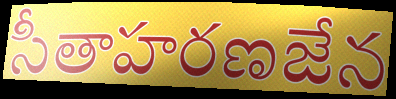
సీతాహరణజేన